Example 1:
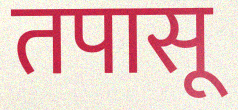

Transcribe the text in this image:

तपासू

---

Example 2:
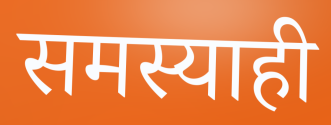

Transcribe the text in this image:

समस्याही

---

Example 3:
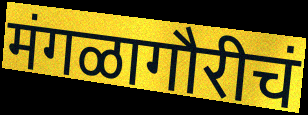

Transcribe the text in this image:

मंगळागौरीचं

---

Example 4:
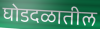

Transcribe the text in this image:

घोडदळातील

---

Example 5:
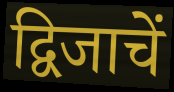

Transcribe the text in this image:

द्विजाचें